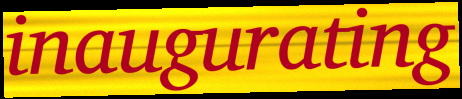
inaugurating